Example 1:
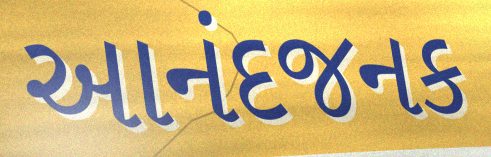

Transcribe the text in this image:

આનંદજનક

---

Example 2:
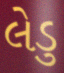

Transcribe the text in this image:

લેડુ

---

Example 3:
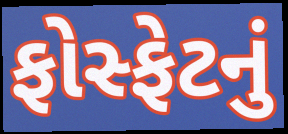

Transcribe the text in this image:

ફોસ્ફેટનું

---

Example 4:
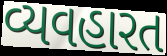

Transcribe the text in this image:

વ્યવહારત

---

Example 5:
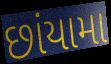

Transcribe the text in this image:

છાંયામા